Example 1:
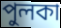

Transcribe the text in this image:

পুলকা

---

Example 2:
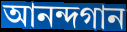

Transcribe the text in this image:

আনন্দগান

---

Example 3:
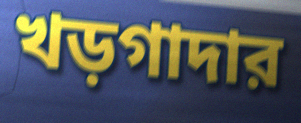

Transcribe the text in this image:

খড়গাদার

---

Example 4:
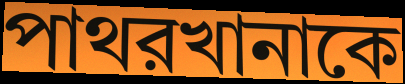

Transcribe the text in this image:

পাথরখানাকে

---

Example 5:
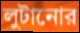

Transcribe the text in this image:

লুটানোর